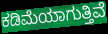
ಕಡಿಮೆಯಾಗುತ್ತಿವೆ